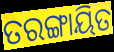
ତରଙ୍ଗାୟିତ